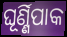
ଘୂର୍ଣ୍ଣିପାକ